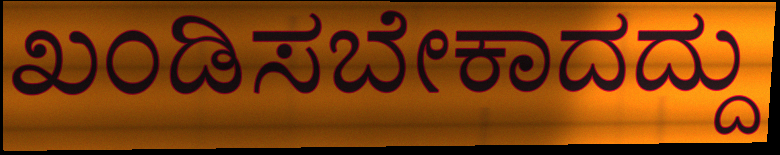
ಖಂಡಿಸಬೇಕಾದದ್ದು